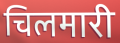
चिलमारी